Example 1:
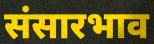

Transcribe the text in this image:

संसारभाव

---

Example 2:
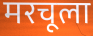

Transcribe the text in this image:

मरचूला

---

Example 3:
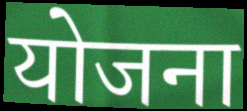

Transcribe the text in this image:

योजना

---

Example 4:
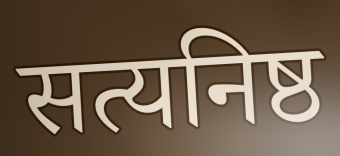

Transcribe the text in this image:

सत्यनिष्ठ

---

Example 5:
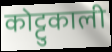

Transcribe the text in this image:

कोट्टुकाली